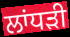
ਲਾਂਧੜੀ